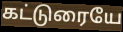
கட்டுரையே